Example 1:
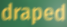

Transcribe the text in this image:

draped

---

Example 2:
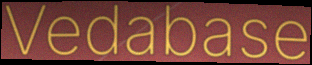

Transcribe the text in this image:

Vedabase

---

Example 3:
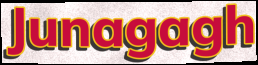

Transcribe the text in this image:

Junagagh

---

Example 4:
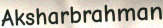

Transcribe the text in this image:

Aksharbrahman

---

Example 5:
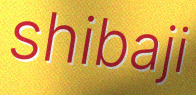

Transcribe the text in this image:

shibaji